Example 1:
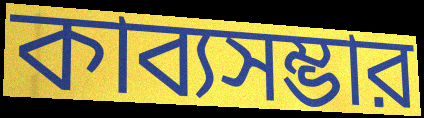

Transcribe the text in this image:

কাব্যসম্ভার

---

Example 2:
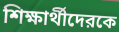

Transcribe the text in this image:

শিক্ষার্থীদেরকে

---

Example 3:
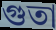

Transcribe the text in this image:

গুতা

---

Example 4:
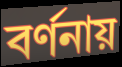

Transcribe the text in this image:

বর্ণনায়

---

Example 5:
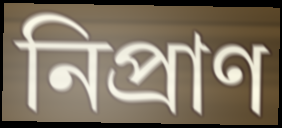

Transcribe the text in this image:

নিপ্রাণ